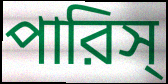
পারিস্